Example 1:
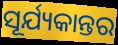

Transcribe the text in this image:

ସୂର୍ଯ୍ୟକାନ୍ତର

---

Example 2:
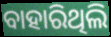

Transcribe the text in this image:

ବାହାରିଥିଲି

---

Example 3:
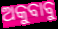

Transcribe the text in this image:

ଅକୁବାବୁ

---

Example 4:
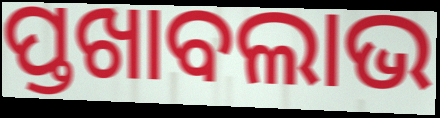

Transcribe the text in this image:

ପ୍ତଖାବଲାଭ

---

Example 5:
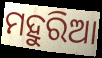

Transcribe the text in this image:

ମହୁରିଆ